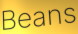
Beans